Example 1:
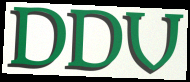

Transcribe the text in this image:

DDU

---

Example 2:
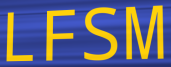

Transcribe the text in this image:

LFSM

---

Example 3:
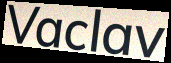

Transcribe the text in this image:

Vaclav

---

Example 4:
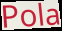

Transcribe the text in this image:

Pola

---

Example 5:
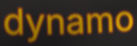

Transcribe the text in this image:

dynamo